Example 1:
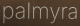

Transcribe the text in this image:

palmyra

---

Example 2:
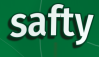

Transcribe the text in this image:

safty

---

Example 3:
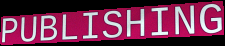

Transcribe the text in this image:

PUBLISHING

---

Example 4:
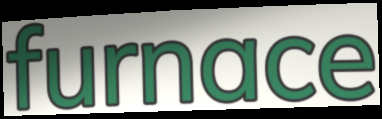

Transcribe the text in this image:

furnace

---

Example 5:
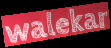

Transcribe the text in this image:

walekar